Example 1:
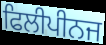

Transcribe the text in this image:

ਫਿਲੀਪੀਨਜ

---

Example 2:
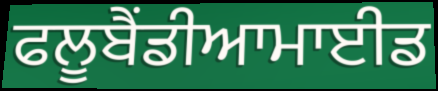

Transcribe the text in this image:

ਫਲੂਬੈਂਡੀਆਮਾਈਡ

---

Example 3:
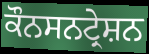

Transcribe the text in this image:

ਕੌਨਸਨਟ੍ਰੇਸ਼ਨ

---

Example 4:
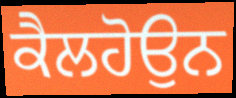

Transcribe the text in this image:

ਕੈਲਹੋਉਨ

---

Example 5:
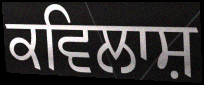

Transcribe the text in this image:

ਕਵਿਲਾਸ਼